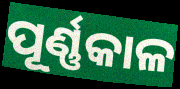
ପୂର୍ଣ୍ଣକାଳ